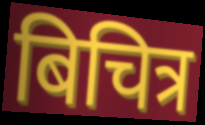
बिचित्र